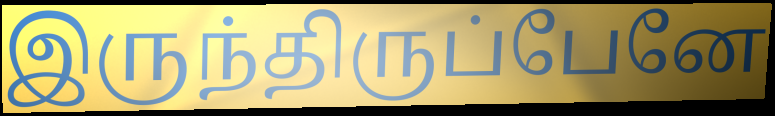
இருந்திருப்பேனே